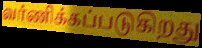
வர்ணிக்கப்படுகிறது